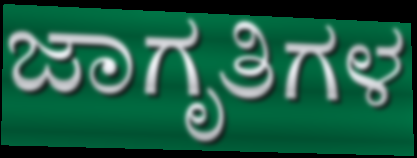
ಜಾಗೃತಿಗಳ